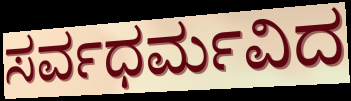
ಸರ್ವಧರ್ಮವಿದ